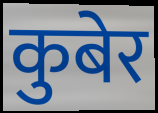
कुबेर